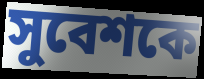
সুবেশকে